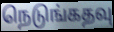
நெடுங்கதவு